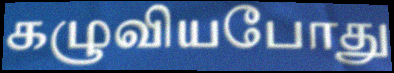
கழுவியபோது